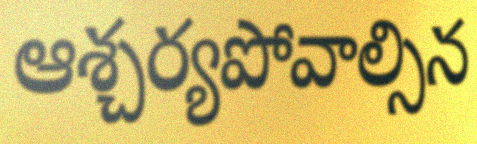
ఆశ్చర్యపోవాల్సిన